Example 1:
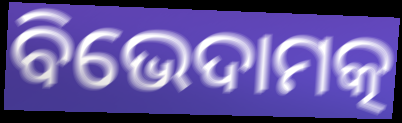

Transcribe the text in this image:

ବିଭେଦାମତ୍କ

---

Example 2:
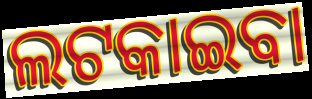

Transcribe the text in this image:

ଲଟକାଇବା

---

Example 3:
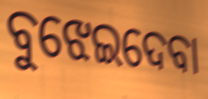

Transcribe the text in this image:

ବୁଝେଇଦେବା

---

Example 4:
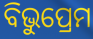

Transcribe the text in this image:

ବିଭୁପ୍ରେମ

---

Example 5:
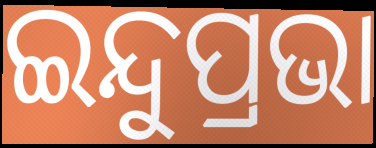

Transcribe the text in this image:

ଇନ୍ଦୁପ୍ରଭା